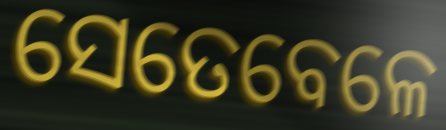
ସେତେବେଳେ